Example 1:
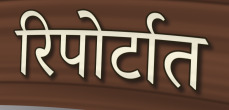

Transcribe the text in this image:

रिपोर्टात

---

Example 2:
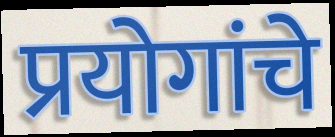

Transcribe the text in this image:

प्रयोगांचे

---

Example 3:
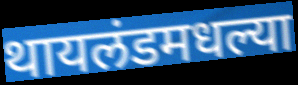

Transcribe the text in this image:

थायलंडमधल्या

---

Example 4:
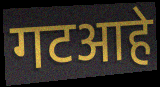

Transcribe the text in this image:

गटआहे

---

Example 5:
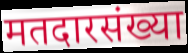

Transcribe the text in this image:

मतदारसंख्या